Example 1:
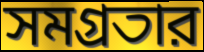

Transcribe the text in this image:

সমগ্রতার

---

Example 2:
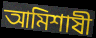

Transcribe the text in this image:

আমিশাষী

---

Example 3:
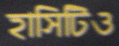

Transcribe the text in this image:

হাসিটিও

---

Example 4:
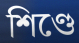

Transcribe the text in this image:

শিণ্ডে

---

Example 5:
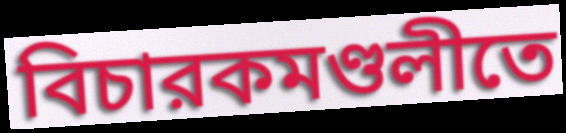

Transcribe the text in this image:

বিচারকমণ্ডলীতে